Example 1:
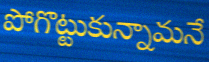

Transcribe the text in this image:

పోగొట్టుకున్నామనే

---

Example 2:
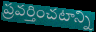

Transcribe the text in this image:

ప్రవర్తించటాన్ని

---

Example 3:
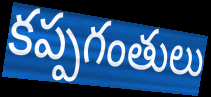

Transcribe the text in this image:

కప్పగంతులు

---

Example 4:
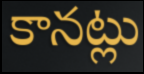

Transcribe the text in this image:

కానట్లు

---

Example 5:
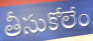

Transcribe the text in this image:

తీసుకోలేం